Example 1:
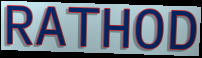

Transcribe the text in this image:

RATHOD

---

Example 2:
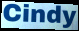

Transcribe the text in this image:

Cindy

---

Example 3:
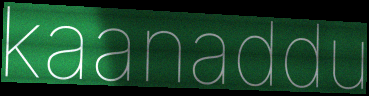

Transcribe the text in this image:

kaanaddu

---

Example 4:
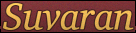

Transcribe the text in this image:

Suvaran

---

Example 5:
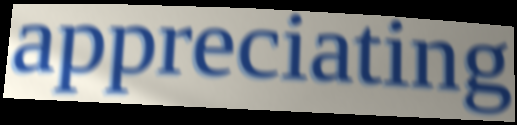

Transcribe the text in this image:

appreciating